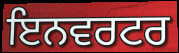
ਇਨਵਰਟਰ